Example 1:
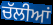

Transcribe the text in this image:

ਚੱਲੀਆਂ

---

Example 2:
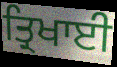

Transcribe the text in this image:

ਤ੍ਰਿਖਾਈ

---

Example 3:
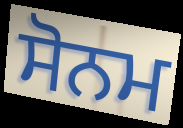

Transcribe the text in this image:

ਸੋਨਮ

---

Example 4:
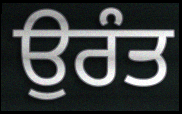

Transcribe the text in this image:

ਉਰੰਤ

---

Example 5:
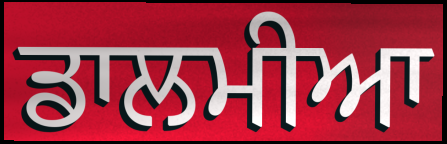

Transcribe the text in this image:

ਡਾਲਮੀਆ